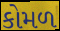
કોમળ